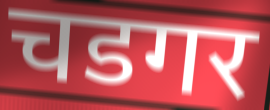
चडगर